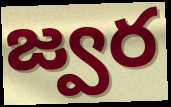
జ్వర